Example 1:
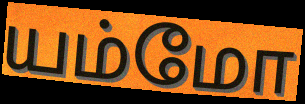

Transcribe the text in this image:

யம்மோ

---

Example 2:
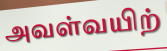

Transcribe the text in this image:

அவள்வயிற்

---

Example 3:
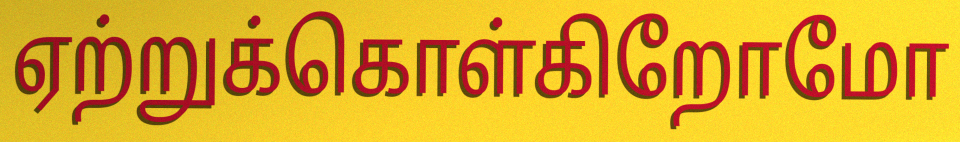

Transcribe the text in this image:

ஏற்றுக்கொள்கிறோமோ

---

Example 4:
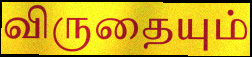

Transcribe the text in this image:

விருதையும்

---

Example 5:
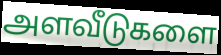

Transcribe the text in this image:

அளவீடுகளை